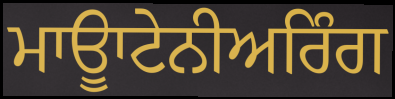
ਮਾਊਾਟੇਨੀਅਰਿੰਗ